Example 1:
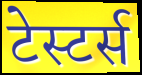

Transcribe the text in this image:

टेस्टर्स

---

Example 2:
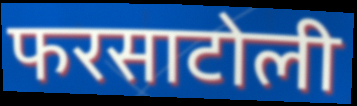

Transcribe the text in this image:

फरसाटोली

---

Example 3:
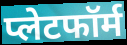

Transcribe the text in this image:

प्लेटफॉर्म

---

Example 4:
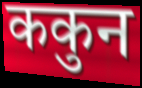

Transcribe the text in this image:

ककुन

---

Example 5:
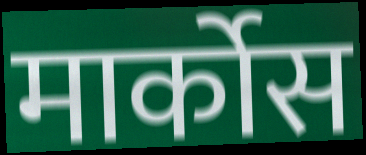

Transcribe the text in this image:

मार्कोस